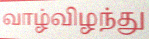
வாழ்விழந்து